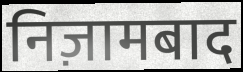
निज़ामबाद